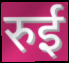
रुई